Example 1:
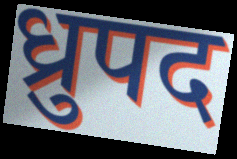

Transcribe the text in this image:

ध्रुपद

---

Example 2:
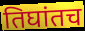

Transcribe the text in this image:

तिघांतच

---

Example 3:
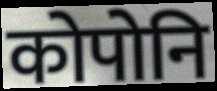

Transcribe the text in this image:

कोपोनि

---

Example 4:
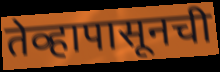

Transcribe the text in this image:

तेव्हापासूनची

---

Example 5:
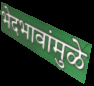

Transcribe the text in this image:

भेदभावांमुळे